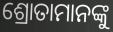
ଶ୍ରୋତାମାନଙ୍କୁ